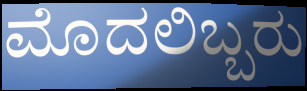
ಮೊದಲಿಬ್ಬರು